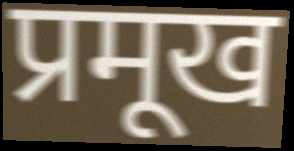
प्रमूख